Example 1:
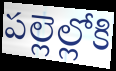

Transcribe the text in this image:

పల్లెల్లోకి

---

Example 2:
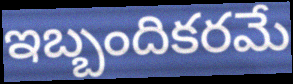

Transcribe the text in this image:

ఇబ్బందికరమే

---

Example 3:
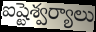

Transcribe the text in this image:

ఐష్టెశ్వర్యాలు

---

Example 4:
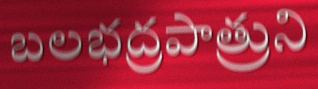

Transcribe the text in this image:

బలభద్రపాత్రుని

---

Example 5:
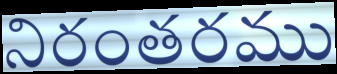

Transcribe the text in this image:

నిరంతరము